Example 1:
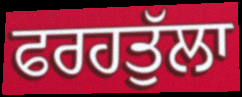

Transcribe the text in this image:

ਫਰਹਤੁੱਲਾ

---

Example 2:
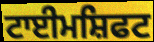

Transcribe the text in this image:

ਟਾਈਮਸ਼ਿਫਟ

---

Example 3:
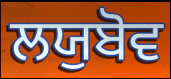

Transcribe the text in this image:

ਲਯੁਬੋਵ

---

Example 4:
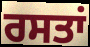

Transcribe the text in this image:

ਰਸਤਾਂ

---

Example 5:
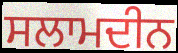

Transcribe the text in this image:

ਸਲਾਮਦੀਨ